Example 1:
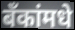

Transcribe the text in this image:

बँकांमधे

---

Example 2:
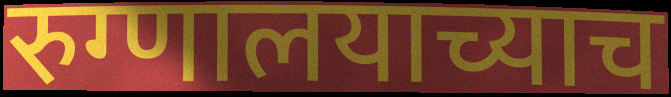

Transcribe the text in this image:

रुग्णालयाच्याच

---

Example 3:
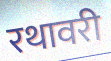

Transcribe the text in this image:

रथावरी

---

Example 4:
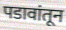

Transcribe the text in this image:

पडावांतून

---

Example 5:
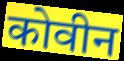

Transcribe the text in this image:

कोवीन